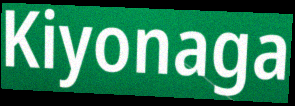
Kiyonaga